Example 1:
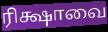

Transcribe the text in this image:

ரிக்ஷாவை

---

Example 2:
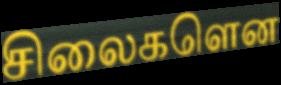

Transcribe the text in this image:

சிலைகளென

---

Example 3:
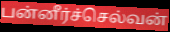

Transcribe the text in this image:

பன்னீர்ச்செல்வன்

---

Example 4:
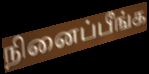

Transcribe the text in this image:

நினைப்பீங்க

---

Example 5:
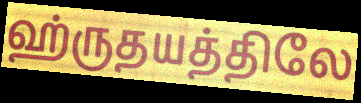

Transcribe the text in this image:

ஹ்ருதயத்திலே